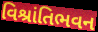
વિશ્રાંતિભવન